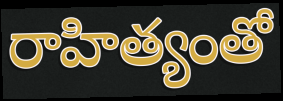
రాహిత్యంతో